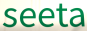
seeta